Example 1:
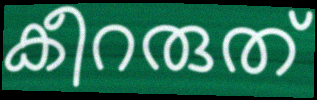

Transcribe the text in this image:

കീറരുത്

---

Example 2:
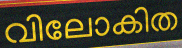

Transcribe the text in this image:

വിലോകിത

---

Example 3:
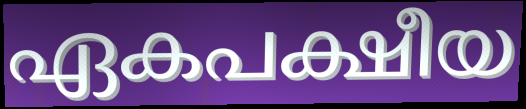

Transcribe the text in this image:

ഏകപക്ഷീയ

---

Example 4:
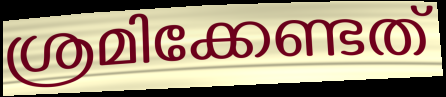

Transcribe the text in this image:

ശ്രമിക്കേണ്ടത്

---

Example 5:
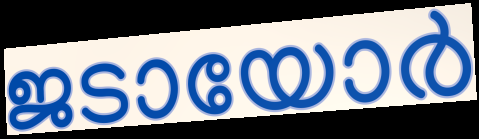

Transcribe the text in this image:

ജടായോർ